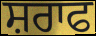
ਸ਼ਰਾਫ